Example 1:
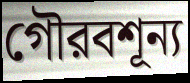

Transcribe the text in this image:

গৌরবশূন্য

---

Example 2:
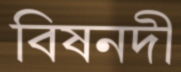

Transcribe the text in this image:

বিষনদী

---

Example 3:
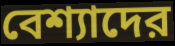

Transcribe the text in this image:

বেশ্যাদের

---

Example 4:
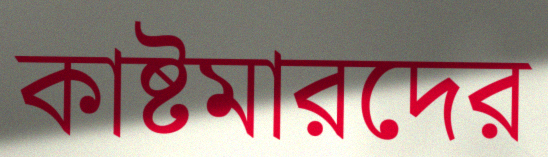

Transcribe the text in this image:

কাষ্টমারদের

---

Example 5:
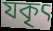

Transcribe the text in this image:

যকৃৎ